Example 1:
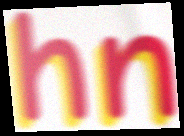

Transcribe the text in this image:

hn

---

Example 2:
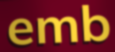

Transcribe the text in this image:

emb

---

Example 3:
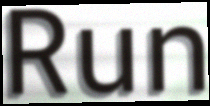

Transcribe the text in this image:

Run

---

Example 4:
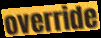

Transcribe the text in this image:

override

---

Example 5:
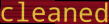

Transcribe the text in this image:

cleaned